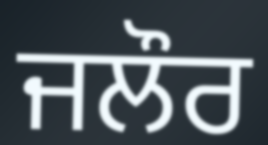
ਜਲੌਰ